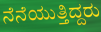
ನೆನೆಯುತ್ತಿದ್ದರು